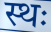
स्थः